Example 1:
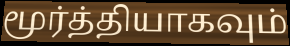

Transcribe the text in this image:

மூர்த்தியாகவும்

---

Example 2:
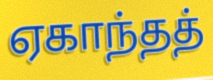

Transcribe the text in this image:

ஏகாந்தத்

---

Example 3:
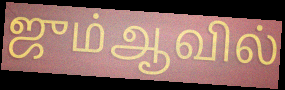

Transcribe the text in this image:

ஜும்ஆவில்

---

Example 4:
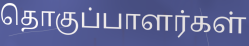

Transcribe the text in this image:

தொகுப்பாளர்கள்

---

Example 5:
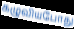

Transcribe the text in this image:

கழுவியபோது